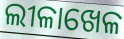
ଲୀଳାଖେଳ